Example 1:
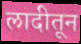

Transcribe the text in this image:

लादीतून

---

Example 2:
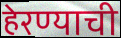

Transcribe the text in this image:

हेरण्याची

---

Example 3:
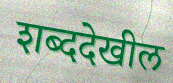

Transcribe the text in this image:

शब्ददेखील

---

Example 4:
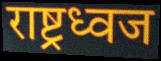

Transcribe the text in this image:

राष्ट्रध्वज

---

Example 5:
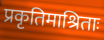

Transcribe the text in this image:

प्रकृतिमाश्रिताः